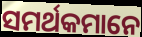
ସମର୍ଥକମାନେ